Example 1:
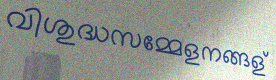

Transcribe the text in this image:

വിശുദ്ധസമ്മേളനങ്ങള്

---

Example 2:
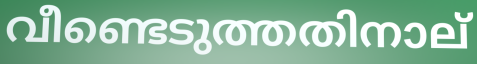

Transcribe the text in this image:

വീണ്ടെടുത്തതിനാല്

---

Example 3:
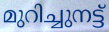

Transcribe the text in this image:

മുറിച്ചുനട്ട്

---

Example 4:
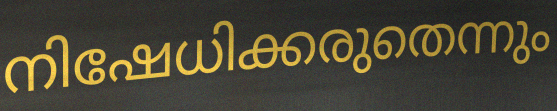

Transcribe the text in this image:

നിഷേധിക്കരുതെന്നും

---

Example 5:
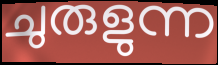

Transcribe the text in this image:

ചുരുളുന്ന